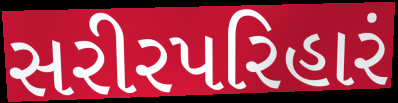
સરીરપરિહારં